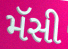
મૅસી